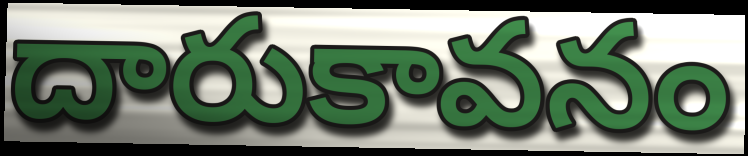
దారుకావనం